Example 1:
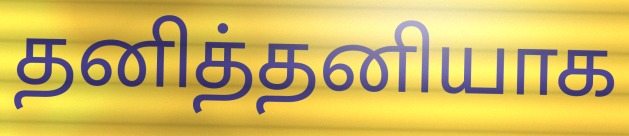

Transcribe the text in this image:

தனித்தனியாக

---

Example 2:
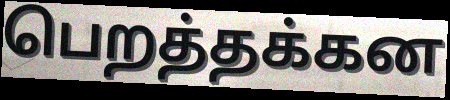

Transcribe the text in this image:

பெறத்தக்கன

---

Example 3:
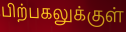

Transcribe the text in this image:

பிற்பகலுக்குள்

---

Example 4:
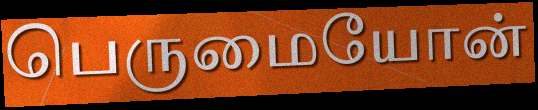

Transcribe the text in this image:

பெருமையோன்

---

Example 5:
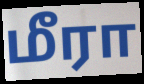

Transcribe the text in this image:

மீரா